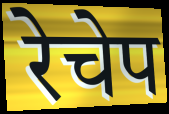
रेचेप